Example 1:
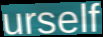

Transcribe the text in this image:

urself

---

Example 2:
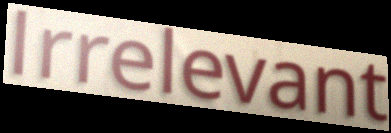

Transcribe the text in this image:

Irrelevant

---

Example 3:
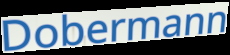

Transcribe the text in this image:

Dobermann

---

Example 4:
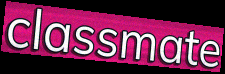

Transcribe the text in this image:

classmate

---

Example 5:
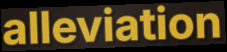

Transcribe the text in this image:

alleviation